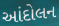
આંદોલન